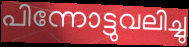
പിന്നോട്ടുവലിച്ചു